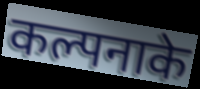
कल्पनाके